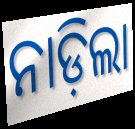
ନାଡ଼ିଲା